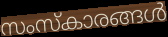
സംസ്കാരങ്ങൾ